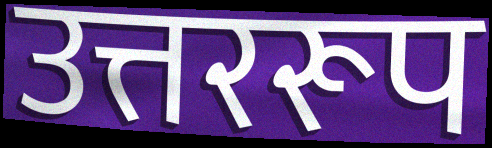
उत्तररूप